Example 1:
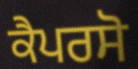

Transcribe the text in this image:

ਕੈਪਰਸੋ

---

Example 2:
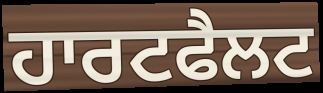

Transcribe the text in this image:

ਹਾਰਟਫੈਲਟ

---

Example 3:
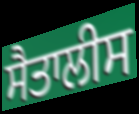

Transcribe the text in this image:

ਸੈਤਾਲੀਸ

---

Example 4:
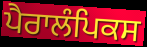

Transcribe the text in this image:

ਪੈਰਾਲੰਪਿਕਸ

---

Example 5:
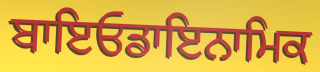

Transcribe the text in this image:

ਬਾਇਓਡਾਇਨਾਮਿਕ